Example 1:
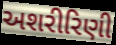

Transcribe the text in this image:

અશરીરિણી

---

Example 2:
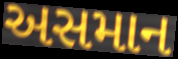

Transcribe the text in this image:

અસમાન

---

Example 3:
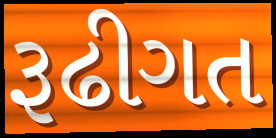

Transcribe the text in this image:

રૂઢીગત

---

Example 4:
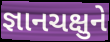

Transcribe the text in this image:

જ્ઞાનચક્ષુને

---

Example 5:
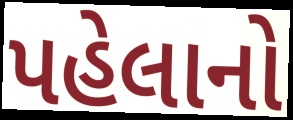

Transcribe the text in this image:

પહેલાનો